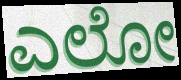
ಎಲೋ